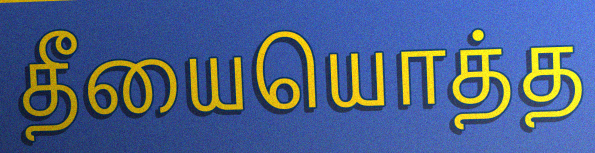
தீயையொத்த